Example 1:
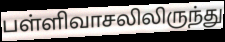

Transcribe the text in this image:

பள்ளிவாசலிலிருந்து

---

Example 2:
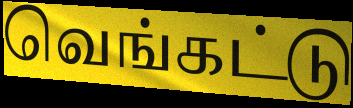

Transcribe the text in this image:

வெங்கட்டு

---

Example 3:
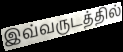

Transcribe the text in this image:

இவ்வருடத்தில்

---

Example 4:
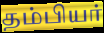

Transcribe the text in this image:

தம்பியர்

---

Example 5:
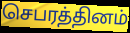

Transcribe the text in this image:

செபரத்தினம்